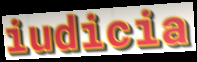
iudicia